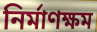
নির্মাণক্ষম